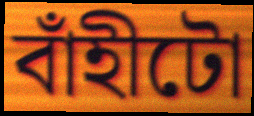
বাঁহীটো